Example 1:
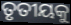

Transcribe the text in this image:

ତୃତୀୟକୁ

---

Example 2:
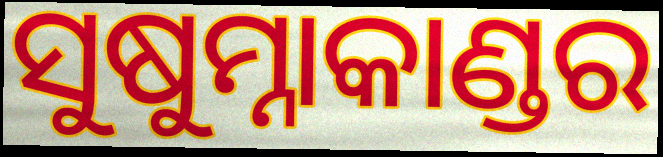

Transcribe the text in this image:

ସୁଷୁମ୍ନାକାଣ୍ଡର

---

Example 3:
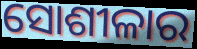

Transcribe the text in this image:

ସୋଶୀଳାର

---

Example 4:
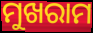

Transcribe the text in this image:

ମୁଖରାମ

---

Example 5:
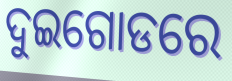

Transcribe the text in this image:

ଦୁଇଗୋଡରେ